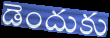
డెందుకు